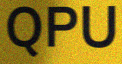
QPU